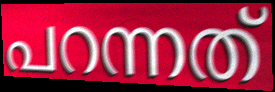
പറന്നത്